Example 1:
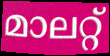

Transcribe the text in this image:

മാലറ്റ്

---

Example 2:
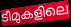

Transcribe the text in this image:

ടീമുകളിലെ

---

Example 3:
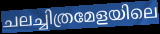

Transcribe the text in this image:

ചലച്ചിത്രമേളയിലെ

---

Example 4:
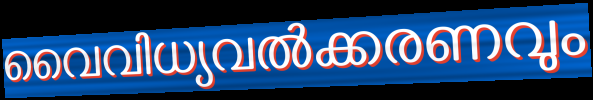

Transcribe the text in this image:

വൈവിധ്യവൽക്കരണവും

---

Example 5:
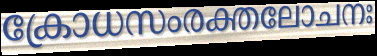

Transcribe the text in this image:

ക്രോധസംരക്തലോചനഃ